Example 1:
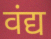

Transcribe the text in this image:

वंद्य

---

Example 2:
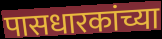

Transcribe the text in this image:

पासधारकांच्या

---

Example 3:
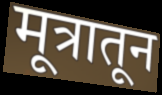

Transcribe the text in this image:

मूत्रातून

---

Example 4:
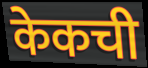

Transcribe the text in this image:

केकची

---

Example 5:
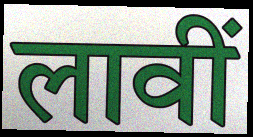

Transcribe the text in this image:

लावीं